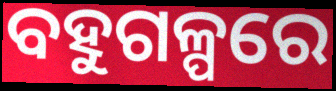
ବହୁଗଳ୍ପରେ